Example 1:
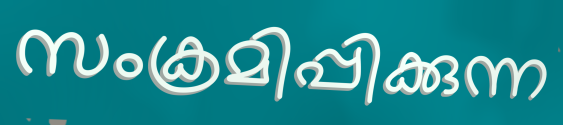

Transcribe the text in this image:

സംക്രമിപ്പിക്കുന്ന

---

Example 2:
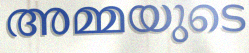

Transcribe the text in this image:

അമ്മയുടെ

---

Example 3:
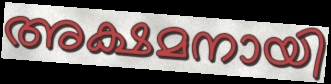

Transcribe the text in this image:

അക്ഷമനായി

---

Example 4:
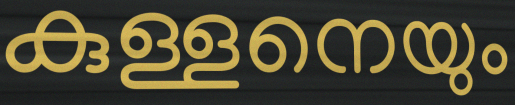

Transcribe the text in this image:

കുള്ളനെയും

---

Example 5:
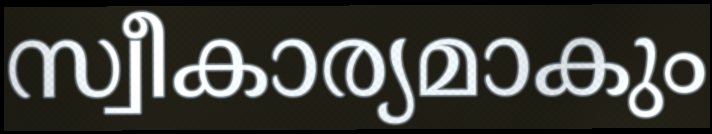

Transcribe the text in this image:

സ്വീകാര്യമാകും